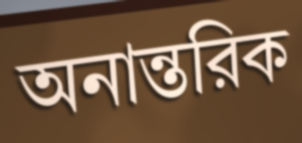
অনান্তরিক